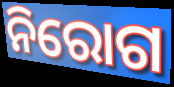
ନିରୋଗ